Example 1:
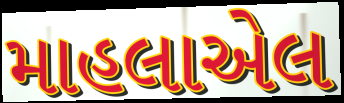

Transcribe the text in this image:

માહલાએલ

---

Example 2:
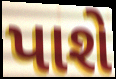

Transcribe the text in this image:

પાશે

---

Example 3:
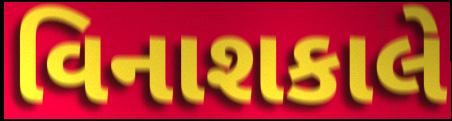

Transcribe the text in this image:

વિનાશકાલે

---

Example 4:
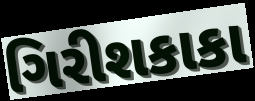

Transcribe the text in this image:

ગિરીશકાકા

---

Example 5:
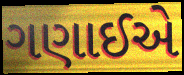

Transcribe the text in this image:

ગણાઈએ